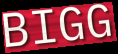
BIGG